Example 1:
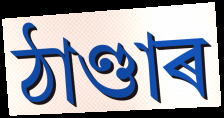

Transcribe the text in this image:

ঠাণ্ডাৰ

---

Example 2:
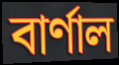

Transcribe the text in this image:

বাৰ্ণাল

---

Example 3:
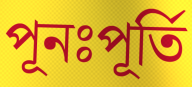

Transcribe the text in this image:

পূনঃপূৰ্তি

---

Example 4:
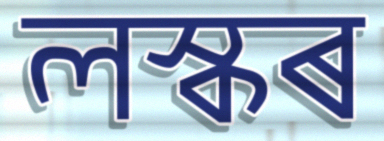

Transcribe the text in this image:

লস্কৰ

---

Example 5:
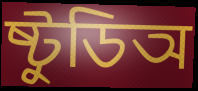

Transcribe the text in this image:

ষ্টুডিঅ